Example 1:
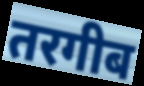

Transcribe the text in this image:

तरगीब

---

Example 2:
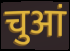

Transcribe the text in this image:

चुआं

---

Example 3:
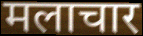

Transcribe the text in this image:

मलाचार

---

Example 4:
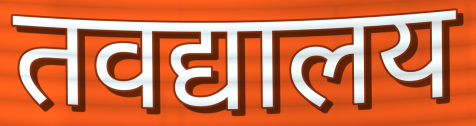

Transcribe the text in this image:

तवद्यालय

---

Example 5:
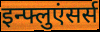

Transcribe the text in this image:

इन्फ्लुएंसर्स